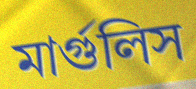
মার্গুলিস